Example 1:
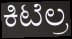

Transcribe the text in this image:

ಕಿಟೆಲ್ರ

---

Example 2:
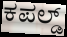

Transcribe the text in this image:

ಕಪಲ್ಡ್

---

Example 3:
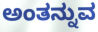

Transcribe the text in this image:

ಅಂತನ್ನುವ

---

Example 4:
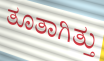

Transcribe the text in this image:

ತೂತಾಗಿತ್ತು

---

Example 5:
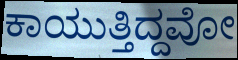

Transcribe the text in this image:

ಕಾಯುತ್ತಿದ್ದವೋ